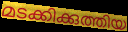
മടക്കിക്കുത്തിയ